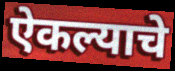
ऐकल्याचे